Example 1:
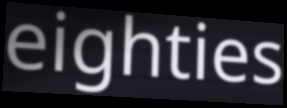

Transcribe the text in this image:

eighties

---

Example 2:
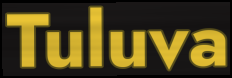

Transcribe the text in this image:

Tuluva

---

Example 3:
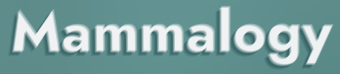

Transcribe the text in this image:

Mammalogy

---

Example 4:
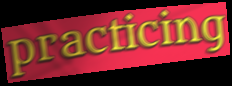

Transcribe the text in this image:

practicing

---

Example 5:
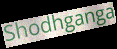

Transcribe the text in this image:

Shodhganga